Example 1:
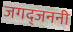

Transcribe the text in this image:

जगद्जननी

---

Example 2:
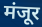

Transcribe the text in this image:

मंजूर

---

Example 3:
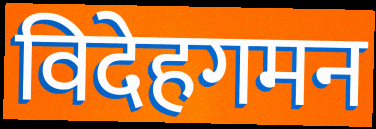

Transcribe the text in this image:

विदेहगमन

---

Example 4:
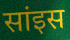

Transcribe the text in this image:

सांइस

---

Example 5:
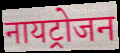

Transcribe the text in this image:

नायट्रोजन